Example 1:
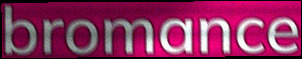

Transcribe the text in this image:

bromance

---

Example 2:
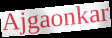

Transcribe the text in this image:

Ajgaonkar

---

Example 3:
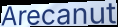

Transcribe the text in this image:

Arecanut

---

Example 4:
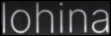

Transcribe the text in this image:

lohina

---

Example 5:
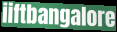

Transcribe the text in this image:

iiftbangalore